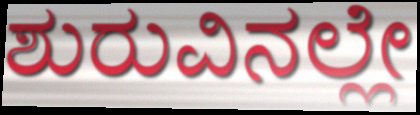
ಶುರುವಿನಲ್ಲೇ